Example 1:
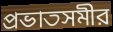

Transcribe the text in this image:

প্রভাতসমীর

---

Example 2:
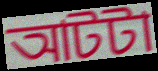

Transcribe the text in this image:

আটটা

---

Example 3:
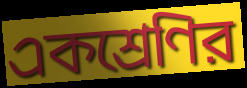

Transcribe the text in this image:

একশ্রেণির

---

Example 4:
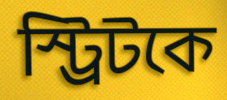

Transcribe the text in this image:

স্ট্রিটকে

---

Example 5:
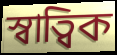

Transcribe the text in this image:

স্বাত্বিক